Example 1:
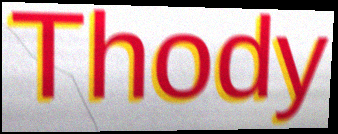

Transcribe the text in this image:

Thody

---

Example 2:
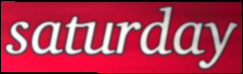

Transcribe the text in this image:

saturday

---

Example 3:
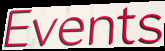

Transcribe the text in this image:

Events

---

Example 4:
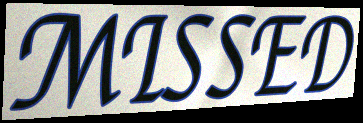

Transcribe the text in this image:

MISSED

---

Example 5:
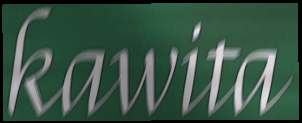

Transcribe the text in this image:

kawita